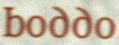
boddo